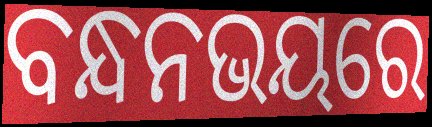
ବନ୍ଧନଭୟରେ